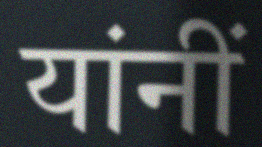
यांनीं